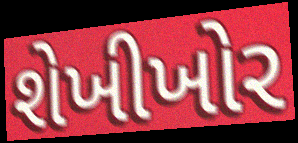
શેખીખોર